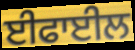
ਈਫਾਈਲ